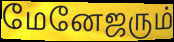
மேனேஜரும்